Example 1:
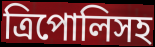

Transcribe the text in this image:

ত্রিপোলিসহ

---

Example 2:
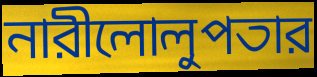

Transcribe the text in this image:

নারীলোলুপতার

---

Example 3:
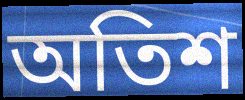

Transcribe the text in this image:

অতিশ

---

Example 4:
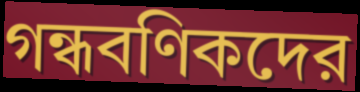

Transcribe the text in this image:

গন্ধবণিকদের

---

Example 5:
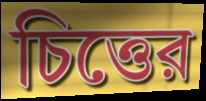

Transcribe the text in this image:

চিত্তের